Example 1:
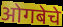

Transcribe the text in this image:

ओगबेचे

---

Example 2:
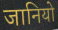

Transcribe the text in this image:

जानियो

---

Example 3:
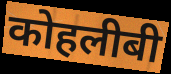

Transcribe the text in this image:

कोहलीबी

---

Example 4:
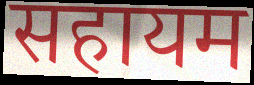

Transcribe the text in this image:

सहायम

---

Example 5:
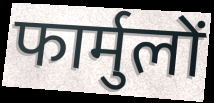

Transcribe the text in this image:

फार्मुलों